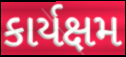
કાર્યક્ષમ